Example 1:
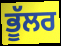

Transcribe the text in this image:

ਭੂੱਲਰ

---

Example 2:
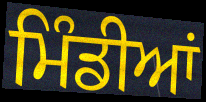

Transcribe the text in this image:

ਮਿੰਡੀਆਂ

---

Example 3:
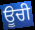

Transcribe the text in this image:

ਊਚੀ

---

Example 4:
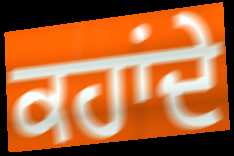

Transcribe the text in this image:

ਕਹਾਂਦੇ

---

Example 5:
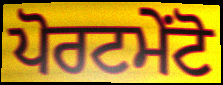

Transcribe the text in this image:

ਪੋਰਟਮੇਂਟੋ